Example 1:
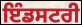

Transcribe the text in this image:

ਇੰਡਸਟਰੀ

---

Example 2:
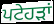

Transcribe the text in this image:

ਪਟੇਹੜਾਂ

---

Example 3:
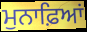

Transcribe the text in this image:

ਮੁਨਾਫ਼ਿਆਂ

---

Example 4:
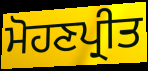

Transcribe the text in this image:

ਮੋਹਣਪ੍ਰੀਤ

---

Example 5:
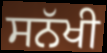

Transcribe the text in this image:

ਸਨੱਖੀ